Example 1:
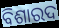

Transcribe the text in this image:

ବିଶାରଦ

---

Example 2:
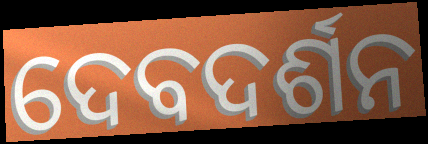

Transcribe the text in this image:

ଦେବଦର୍ଶନ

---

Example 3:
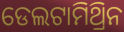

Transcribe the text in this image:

ଡେଲଟାମିଥ୍ରିନ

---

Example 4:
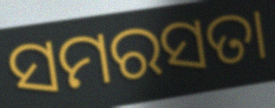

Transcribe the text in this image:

ସମରସତା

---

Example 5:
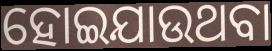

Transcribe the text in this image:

ହୋଇଯାଉଥବା